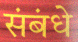
संबंधे